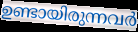
ഉണ്ടായിരുന്നവർ